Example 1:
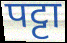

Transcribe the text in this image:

पट्टा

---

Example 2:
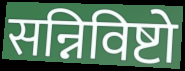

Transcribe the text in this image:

सन्निविष्टो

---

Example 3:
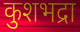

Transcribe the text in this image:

कुशभद्रा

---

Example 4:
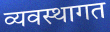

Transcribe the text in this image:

व्यवस्थागत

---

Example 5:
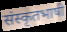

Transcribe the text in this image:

संस्कृतभाषी